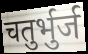
चतुर्भुर्ज